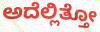
ಅದೆಲ್ಲಿತ್ತೋ